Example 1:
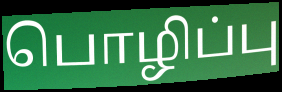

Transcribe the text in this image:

பொழிப்பு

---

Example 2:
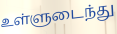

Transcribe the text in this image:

உள்ளுடைந்து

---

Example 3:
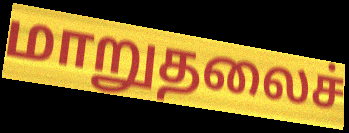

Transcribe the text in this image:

மாறுதலைச்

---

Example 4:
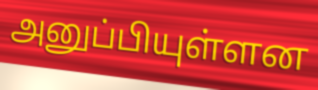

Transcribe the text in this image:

அனுப்பியுள்ளன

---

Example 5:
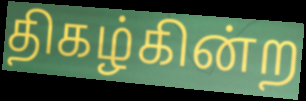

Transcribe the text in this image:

திகழ்கின்ற